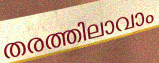
തരത്തിലാവാം